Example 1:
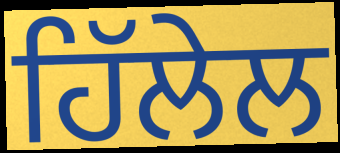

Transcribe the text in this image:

ਹਿੱਲੇਲ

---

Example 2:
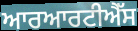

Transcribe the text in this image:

ਆਰਆਰਟੀਐੱਸ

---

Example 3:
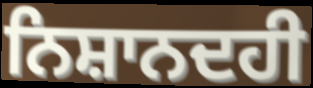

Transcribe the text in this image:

ਨਿਸ਼ਾਨਦਹੀ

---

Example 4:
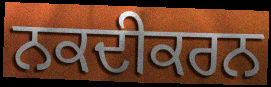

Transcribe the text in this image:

ਨਕਦੀਕਰਨ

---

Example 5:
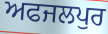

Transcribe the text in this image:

ਅਫਜਲਪੁਰ